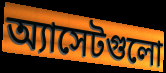
অ্যাসেটগুলো